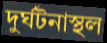
দুর্ঘটনাস্থল